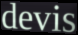
devis